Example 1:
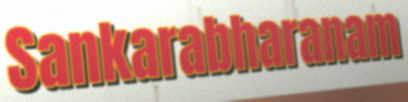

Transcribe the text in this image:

Sankarabharanam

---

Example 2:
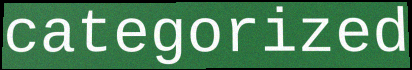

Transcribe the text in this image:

categorized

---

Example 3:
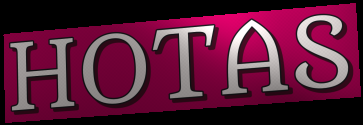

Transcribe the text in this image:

HOTAS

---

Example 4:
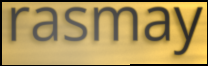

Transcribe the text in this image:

rasmay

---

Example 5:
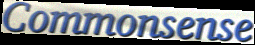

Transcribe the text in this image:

Commonsense